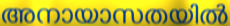
അനായാസതയിൽ